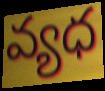
వ్యధ